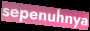
sepenuhnya